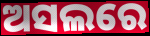
ଅସଲରେ